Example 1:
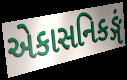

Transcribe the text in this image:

એકાસનિકઙ્ગં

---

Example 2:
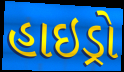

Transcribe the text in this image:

હાઇડ્રો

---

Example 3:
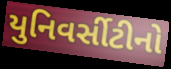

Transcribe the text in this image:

યુનિવર્સીટીનો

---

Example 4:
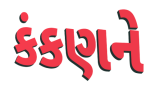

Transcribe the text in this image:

કંકણને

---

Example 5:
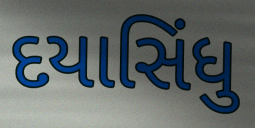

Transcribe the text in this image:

દયાસિંધુ